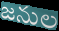
జనుల